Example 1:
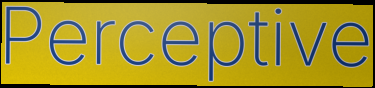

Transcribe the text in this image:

Perceptive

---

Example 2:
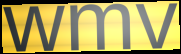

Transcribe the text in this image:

wmv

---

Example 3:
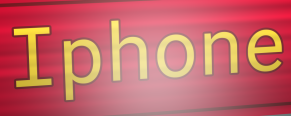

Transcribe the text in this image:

Iphone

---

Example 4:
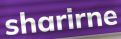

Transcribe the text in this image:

sharirne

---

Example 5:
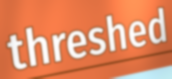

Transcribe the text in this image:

threshed